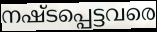
നഷ്ടപ്പെട്ടവരെ